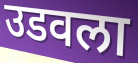
उडवला